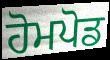
ਹੋਮਪੋਡ